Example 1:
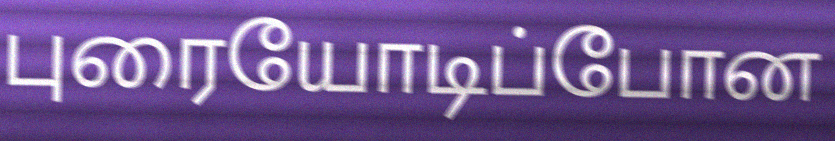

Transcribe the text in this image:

புரையோடிப்போன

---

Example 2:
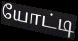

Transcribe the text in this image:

யோட்டி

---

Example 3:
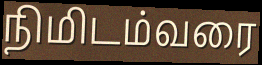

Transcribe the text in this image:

நிமிடம்வரை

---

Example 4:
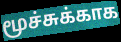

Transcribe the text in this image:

மூச்சுக்காக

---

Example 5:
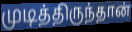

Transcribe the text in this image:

முடித்திருந்தான்